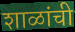
शाळांची